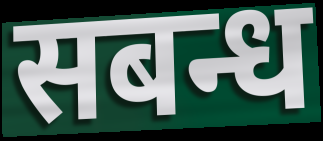
सबन्ध